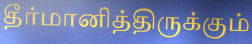
தீர்மானித்திருக்கும்